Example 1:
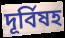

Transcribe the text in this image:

দূর্বিষহ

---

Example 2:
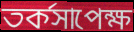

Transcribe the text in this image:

তর্কসাপেক্ষ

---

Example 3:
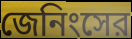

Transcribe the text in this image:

জেনিংসের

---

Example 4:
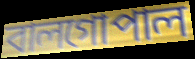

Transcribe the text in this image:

বালগোপাল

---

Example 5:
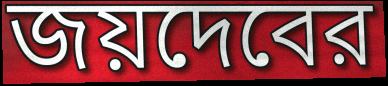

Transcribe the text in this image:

জয়দেবের